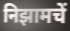
निझामचें